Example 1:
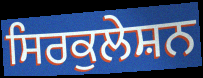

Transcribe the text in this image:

ਸਿਰਕੁਲੇਸ਼ਨ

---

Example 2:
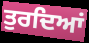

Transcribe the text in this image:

ਤੁਰਦਿਆਂ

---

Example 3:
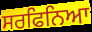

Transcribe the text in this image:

ਸਰਫਿਨਿਆ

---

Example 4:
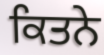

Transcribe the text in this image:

ਕਿਤਨੇ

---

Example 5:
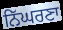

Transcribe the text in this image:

ਨਿੱਘਰਣਾ